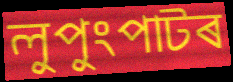
লুপুংপাটৰ